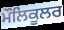
ਮੌਲਿਕੂਲਰ